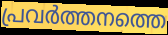
പ്രവർത്തനത്തെ